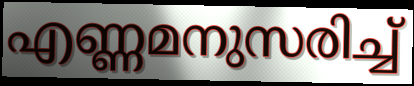
എണ്ണമനുസരിച്ച്